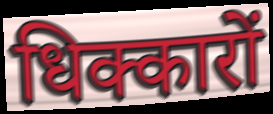
धिक्कारों